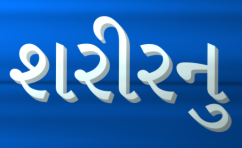
શરીરનુ